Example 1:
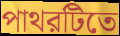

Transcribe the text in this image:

পাথরটিতে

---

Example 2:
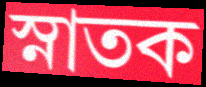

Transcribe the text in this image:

স্নাতক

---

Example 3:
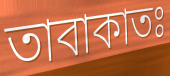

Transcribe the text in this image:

তাবাকাতঃ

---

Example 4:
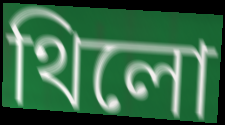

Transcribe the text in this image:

থিলো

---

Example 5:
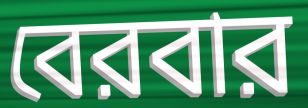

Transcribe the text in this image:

বেরবার